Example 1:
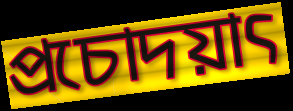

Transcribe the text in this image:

প্রচোদয়াৎ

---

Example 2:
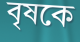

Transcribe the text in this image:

বৃষকে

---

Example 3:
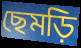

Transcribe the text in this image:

ছেমড়ি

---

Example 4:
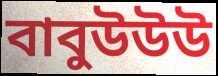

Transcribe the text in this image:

বাবুউউউ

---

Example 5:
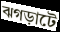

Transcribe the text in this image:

ঝগড়াটে